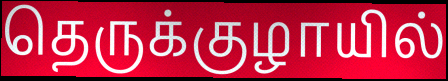
தெருக்குழாயில்